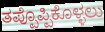
ತಪ್ಪೊಪ್ಪಿಕೊಳ್ಳಲು